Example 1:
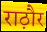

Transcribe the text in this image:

राठ़ौर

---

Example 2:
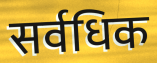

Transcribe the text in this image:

सर्वधिक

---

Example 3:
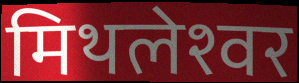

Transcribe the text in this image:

मिथलेश्वर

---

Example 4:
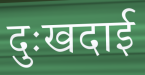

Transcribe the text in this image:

दुःखदाई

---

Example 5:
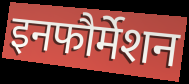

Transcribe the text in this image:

इनफौर्मेशन